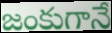
జంకుగానే